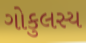
ગોકુલસ્ય